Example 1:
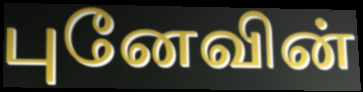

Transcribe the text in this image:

புனேவின்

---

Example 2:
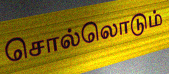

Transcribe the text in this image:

சொல்லொடும்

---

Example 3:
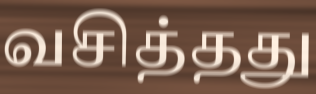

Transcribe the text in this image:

வசித்தது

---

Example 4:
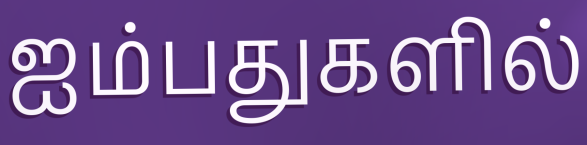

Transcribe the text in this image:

ஐம்பதுகளில்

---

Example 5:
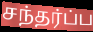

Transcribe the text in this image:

சந்தர்ப்ப